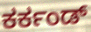
ಕರ್ಕಂಡ್